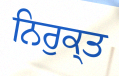
ਨਿਰੁਕ੍ਤ